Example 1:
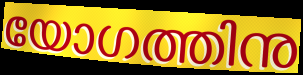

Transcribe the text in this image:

യോഗത്തിനു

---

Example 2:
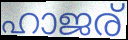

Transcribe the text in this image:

ഹാജര്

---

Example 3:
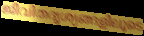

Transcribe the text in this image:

ജീവിതദൃശ്യങ്ങളിലൂടെ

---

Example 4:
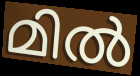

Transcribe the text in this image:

മിൽ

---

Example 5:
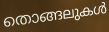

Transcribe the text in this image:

തൊങ്ങലുകൾ